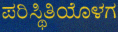
ಪರಿಸ್ಥಿತಿಯೊಳಗ